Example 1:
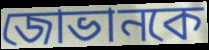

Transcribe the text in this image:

জোভানকে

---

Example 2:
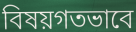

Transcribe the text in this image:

বিষয়গতভাবে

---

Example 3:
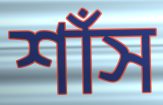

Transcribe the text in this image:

শাঁস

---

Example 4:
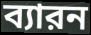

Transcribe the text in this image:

ব্যারন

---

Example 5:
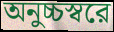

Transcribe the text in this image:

অনুচ্চস্বরে